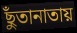
ছুঁতানাতায়